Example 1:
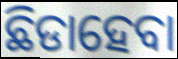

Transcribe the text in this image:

ଛିଡାହେବା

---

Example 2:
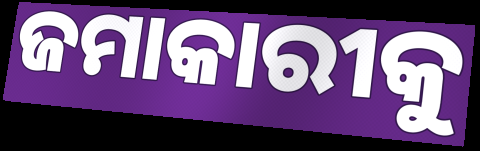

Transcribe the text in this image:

ଜମାକାରୀକୁ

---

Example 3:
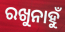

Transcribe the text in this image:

ରଖୁନାହୁଁ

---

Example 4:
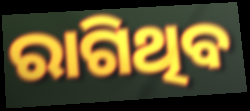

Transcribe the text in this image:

ରାଗିଥିବ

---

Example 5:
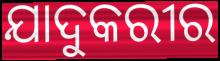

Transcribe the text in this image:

ଯାଦୁକରୀର